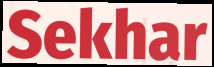
Sekhar